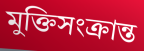
মুক্তিসংক্রান্ত